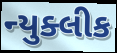
ન્યુક્લીક